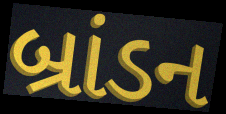
બ્રાંડન